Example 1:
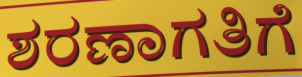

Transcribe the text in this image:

ಶರಣಾಗತಿಗೆ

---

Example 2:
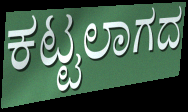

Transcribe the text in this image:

ಕಟ್ಟಲಾಗದ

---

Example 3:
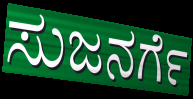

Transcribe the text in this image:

ಸುಜನರ್ಗೆ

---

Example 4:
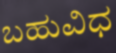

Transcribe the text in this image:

ಬಹುವಿಧ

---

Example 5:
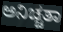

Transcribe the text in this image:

ಅನಿಚ್ಚತಾ